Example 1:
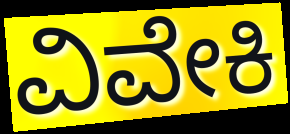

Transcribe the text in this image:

ವಿವೇಕಿ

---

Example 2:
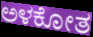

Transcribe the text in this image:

ಅಳಕೋತ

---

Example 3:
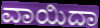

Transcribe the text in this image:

ವಾಯಿದಾ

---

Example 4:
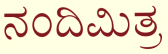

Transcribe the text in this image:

ನಂದಿಮಿತ್ರ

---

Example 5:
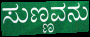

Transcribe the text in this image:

ಸುಣ್ಣವನು